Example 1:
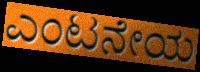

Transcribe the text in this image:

ಎಂಟನೇಯ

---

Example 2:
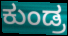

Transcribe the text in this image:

ಕುಂಡ್ರ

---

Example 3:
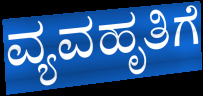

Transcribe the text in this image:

ವ್ಯವಹೃತಿಗೆ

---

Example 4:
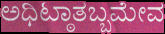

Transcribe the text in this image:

ಅಧಿಟ್ಠಾತಬ್ಬಮೇವ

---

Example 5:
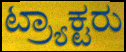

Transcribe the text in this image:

ಟ್ರ್ಯಾಕ್ಟರು